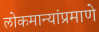
लोकमान्यांप्रमाणे